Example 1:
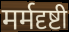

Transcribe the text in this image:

मर्मदृष्टी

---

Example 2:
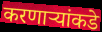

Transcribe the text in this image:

करणाऱ्यांकडे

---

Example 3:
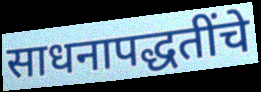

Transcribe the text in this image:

साधनापद्धतींचे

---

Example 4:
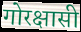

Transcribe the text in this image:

गोरक्षासी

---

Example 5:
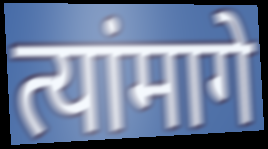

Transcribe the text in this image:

त्यांमागे